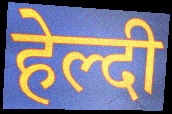
हेल्‍दी